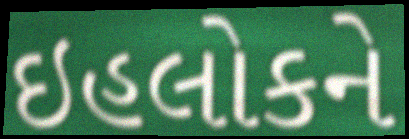
ઇહલોકને